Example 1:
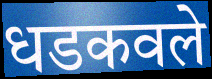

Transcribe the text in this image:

धडकवले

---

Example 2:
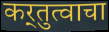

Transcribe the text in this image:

कर्तुत्वाचा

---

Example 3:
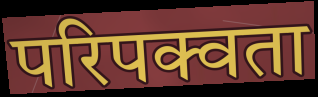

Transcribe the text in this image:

परिपक्‍वता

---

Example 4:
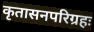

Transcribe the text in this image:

कृतासनपरिग्रहः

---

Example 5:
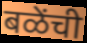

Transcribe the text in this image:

बळेंची